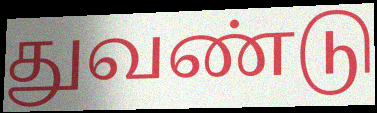
துவண்டு